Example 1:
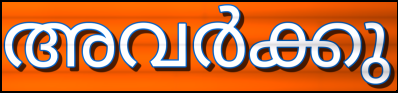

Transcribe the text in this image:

അവർക്കു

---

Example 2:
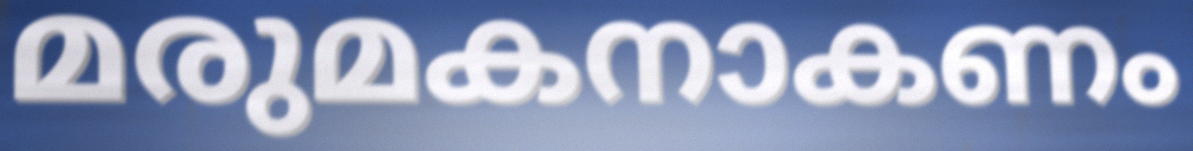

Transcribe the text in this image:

മരുമകനാകണം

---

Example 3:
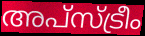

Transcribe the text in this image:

അപ്സ്ട്രീം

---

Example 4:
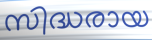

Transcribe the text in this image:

സിദ്ധരായ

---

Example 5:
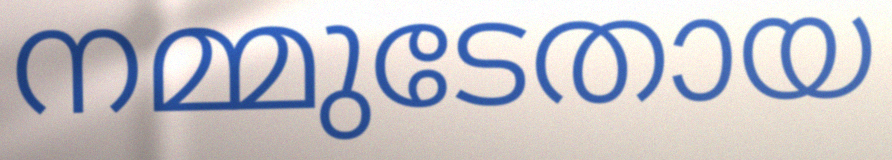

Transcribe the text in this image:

നമ്മുടേതായ